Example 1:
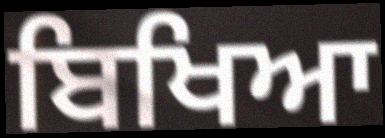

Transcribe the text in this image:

ਬਿਖਿਆ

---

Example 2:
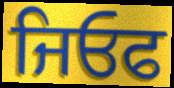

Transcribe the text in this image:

ਜਿਓਫ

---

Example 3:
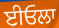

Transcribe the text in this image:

ਈਓਲਾ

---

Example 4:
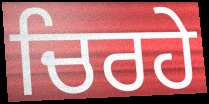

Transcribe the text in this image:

ਚਿਰਹੇ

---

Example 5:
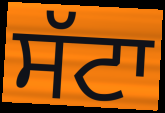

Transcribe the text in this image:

ਸੱਟਾ